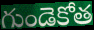
గుండెకోత